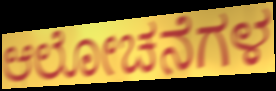
ಆಲೋಚನೆಗಳ